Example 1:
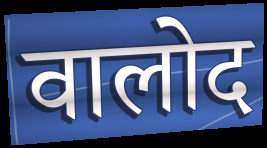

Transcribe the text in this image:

वालोद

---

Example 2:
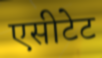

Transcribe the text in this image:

एसीटेट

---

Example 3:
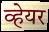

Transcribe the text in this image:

व्हेयर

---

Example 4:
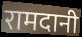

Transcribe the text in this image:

रामदानी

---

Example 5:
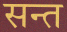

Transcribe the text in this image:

सन्‍त